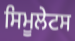
ਸਿਮੂਲੇਟਸ